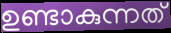
ഉണ്ടാകുന്നത്